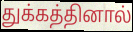
துக்கத்தினால்